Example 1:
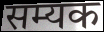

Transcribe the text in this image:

सम्‍यक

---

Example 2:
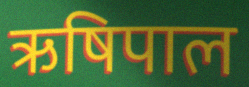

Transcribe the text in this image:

ऋषिपाल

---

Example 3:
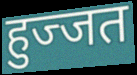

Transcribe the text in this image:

हुज्जत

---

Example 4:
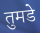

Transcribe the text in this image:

तुमडे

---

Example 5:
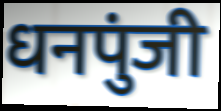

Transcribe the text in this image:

धनपुंजी